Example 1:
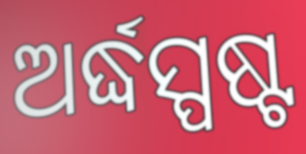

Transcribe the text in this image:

ଅର୍ଦ୍ଧସ୍ପଷ୍ଟ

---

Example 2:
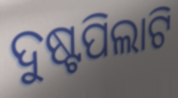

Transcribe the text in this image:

ଦୁଷ୍ଟପିଲାଟି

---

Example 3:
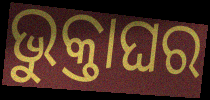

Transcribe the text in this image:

ଭୁକ୍ତାଘର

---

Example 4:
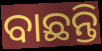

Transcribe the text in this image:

ବାଛନ୍ତି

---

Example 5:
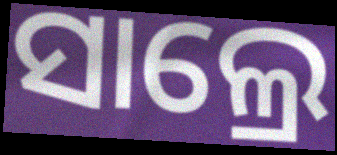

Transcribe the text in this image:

ସାଲ୍ରେ